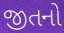
જીતનો